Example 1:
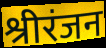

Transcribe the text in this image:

श्रीरंजन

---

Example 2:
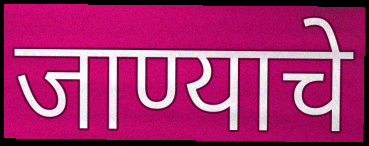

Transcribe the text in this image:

जाण्याचे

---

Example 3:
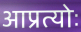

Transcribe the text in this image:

आप्रत्योः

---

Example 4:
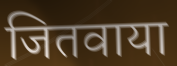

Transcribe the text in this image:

जितवाया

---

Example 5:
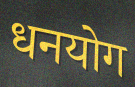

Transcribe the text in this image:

धनयोग